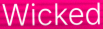
Wicked